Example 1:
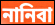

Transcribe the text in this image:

নানিবা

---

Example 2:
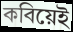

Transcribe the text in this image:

কবিয়েই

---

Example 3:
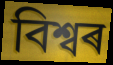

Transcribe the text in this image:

বিশ্বৰ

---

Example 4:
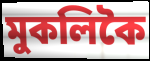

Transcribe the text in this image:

মুকলিকৈ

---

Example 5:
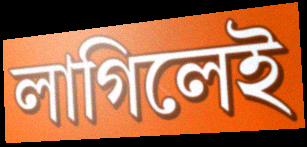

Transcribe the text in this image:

লাগিলেই